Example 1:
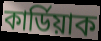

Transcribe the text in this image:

কাৰ্ডিয়াক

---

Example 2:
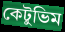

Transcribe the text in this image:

কেটুভিম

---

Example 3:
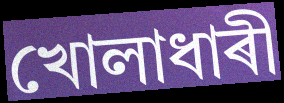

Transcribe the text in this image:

খোলাধাৰী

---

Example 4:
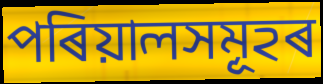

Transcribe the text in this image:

পৰিয়ালসমূহৰ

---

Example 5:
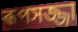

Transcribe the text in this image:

ৰূপসজ্জা